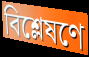
বিশ্লেষণে